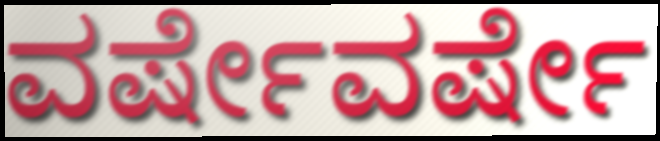
ವರ್ಷೇವರ್ಷೇ